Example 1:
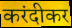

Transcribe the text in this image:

करंदीकर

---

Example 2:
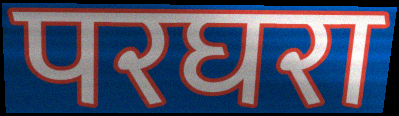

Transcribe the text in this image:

परघरा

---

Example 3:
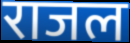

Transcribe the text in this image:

राजल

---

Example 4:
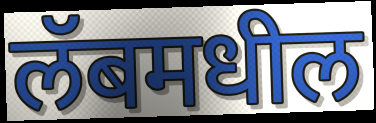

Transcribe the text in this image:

लॅबमधील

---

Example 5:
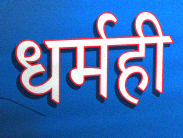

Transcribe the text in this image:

धर्मही